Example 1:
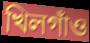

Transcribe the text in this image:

খিলগাঁও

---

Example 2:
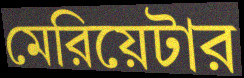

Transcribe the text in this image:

মেরিয়েটার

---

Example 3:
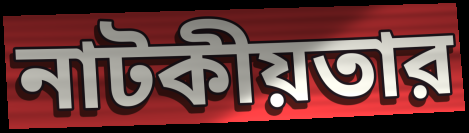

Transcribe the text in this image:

নাটকীয়তার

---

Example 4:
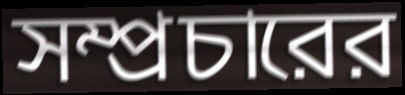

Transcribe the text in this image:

সম্প্রচারের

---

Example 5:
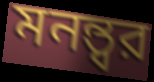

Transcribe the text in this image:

মনন্ত্বর